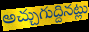
అచ్చుగుద్దినట్లు